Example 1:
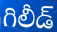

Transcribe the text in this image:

గిలీడ్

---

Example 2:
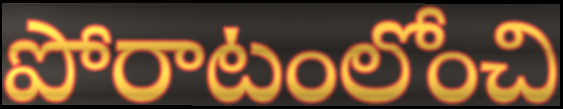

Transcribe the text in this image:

పోరాటంలోంచి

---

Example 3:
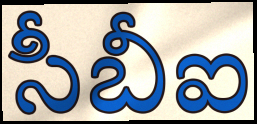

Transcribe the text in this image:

సీబీఐ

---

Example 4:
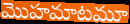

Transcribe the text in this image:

మొహమాటమూ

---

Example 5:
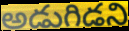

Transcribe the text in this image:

అడుగిడని